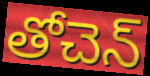
తోచెన్